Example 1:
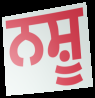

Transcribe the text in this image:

ਨਸ਼ੂ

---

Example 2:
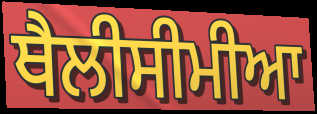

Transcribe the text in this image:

ਥੈਲੀਸੀਮੀਆ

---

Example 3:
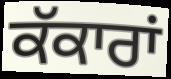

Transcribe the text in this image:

ਕੱਕਾਰਾਂ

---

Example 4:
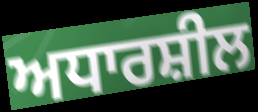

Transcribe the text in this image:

ਅਧਾਰਸ਼ੀਲ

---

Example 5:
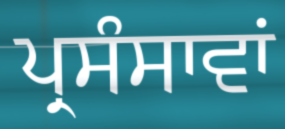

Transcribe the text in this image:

ਪ੍ਰਸੰਸਾਵਾਂ